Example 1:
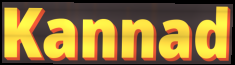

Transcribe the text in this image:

Kannad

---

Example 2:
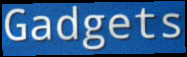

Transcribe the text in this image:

Gadgets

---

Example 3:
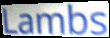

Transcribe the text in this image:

Lambs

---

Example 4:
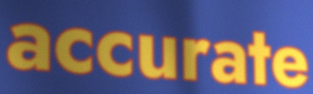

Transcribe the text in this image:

accurate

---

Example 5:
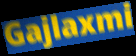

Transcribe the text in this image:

Gajlaxmi